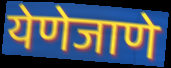
येणेजाणे